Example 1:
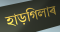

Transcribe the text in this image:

হাড়গিলাৰ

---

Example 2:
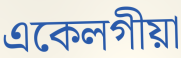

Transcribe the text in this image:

একেলগীয়া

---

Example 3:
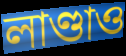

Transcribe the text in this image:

লাণ্ডাও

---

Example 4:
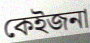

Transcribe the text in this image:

কেইজনা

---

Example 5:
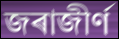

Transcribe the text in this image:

জৰাজীৰ্ণ